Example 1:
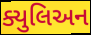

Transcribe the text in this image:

ક્યુલિઅન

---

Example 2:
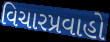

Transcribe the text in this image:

વિચારપ્રવાહો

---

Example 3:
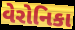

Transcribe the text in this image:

વેરોનિકા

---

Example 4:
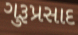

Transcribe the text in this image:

ગુરૂપ્રસાદ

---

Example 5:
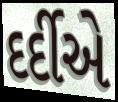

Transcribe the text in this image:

દર્દીએ